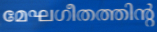
മേഘഗീതത്തിന്റ